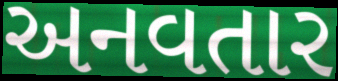
અનવતાર